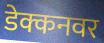
डेक्कनवर